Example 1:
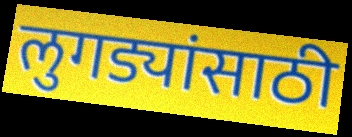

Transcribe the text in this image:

लुगड्यांसाठी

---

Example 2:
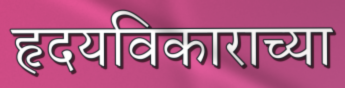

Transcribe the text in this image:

हृदयविकाराच्या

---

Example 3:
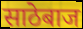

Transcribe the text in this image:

साठेबाज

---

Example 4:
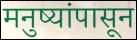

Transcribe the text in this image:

मनुष्यांपासून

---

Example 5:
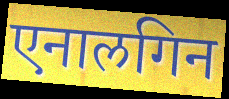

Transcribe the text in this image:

एनालगिन